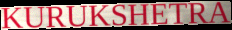
KURUKSHETRA